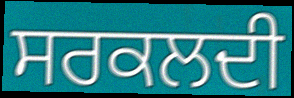
ਸਰਕਲਦੀ